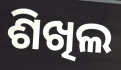
ଶିଖିଲ